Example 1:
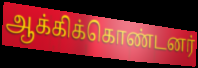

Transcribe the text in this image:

ஆக்கிக்கொண்டனர்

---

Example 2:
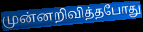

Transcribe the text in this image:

முன்னறிவித்தபோது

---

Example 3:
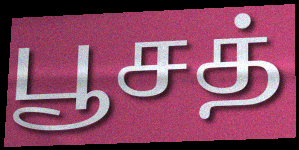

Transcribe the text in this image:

பூசத்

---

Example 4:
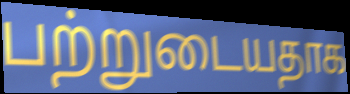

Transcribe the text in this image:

பற்றுடையதாக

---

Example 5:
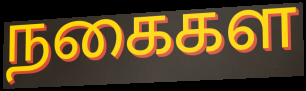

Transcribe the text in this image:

நகைகள